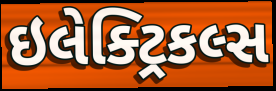
ઇલેક્ટ્રિકલ્સ